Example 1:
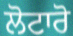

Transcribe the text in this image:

ਲੋਟਾਰੋ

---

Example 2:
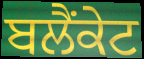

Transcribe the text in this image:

ਬਲੈਂਕੇਟ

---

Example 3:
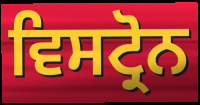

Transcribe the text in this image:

ਵਿਸਟ੍ਰੋਨ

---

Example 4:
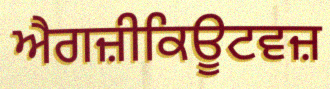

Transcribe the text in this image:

ਐਗਜ਼ੀਕਿਊਟਵਜ਼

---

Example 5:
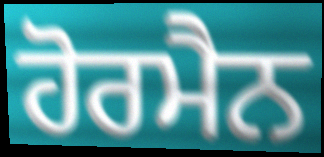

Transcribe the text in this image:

ਹੋਰਮੈਨ